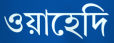
ওয়াহেদি